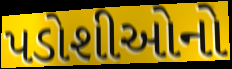
પડોશીઓનો